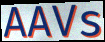
AAVs